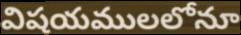
విషయములలోనూ